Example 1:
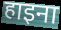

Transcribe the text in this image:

हाइना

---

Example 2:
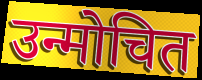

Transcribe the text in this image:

उन्मोचित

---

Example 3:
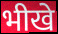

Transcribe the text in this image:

भीखे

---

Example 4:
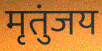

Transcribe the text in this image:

मृतुंजय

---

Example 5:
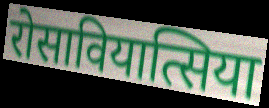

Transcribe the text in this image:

रोसावियात्सिया